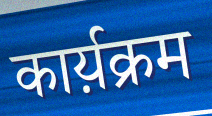
कार्य़क्रम